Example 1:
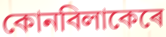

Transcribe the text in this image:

কোনবিলাকেৰে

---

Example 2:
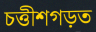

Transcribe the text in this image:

চত্তীশগড়ত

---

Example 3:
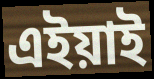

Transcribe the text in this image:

এইয়াই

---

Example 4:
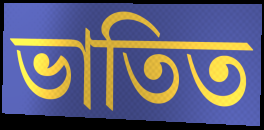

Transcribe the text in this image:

ভাতিত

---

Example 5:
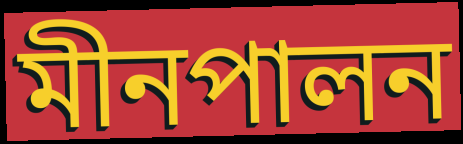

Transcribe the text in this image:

মীনপালন